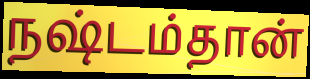
நஷ்டம்தான்